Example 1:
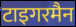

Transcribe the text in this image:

टाइगरमैन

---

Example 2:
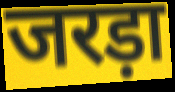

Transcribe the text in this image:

जरड़ा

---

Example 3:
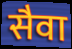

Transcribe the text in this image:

सैवा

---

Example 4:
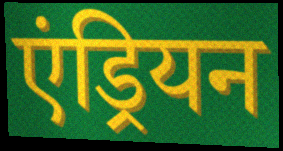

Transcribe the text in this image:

एंड्रियन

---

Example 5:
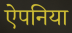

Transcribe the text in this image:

ऐपनिया